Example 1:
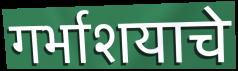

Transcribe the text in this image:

गर्भाशयाचे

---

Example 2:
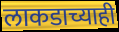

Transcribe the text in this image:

लाकडाच्याही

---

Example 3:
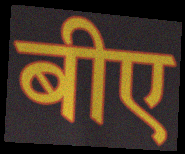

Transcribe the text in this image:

बीए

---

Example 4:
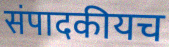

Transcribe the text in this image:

संपादकीयच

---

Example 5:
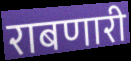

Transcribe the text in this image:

राबणारी